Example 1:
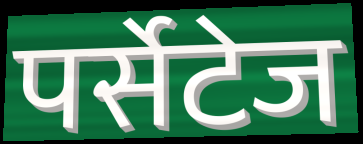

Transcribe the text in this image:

पर्सेटेज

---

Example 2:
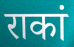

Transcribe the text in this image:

राकां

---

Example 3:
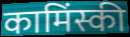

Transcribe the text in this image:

कामिंस्की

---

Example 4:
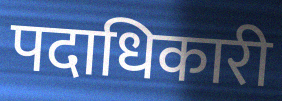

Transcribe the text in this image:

पदाधिकारी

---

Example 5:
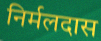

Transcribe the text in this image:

निर्मलदास